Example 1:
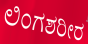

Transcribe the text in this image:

ಲಿಂಗಶರೀರ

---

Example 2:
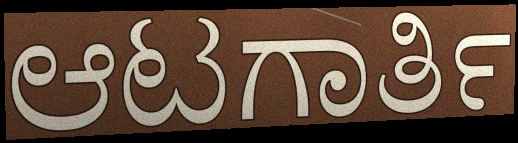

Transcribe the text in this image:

ಆಟಗಾರ್ತಿ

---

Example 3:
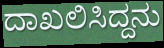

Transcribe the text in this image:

ದಾಖಲಿಸಿದ್ದನು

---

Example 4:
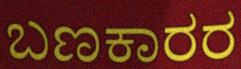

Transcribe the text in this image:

ಬಣಕಾರರ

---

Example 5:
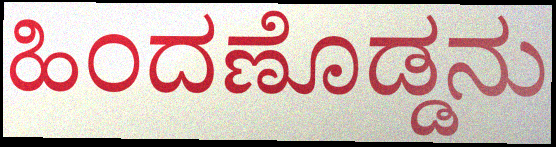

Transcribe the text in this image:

ಹಿಂದಣೊಡ್ಡನು